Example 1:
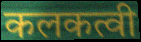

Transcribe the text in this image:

कलकत्वी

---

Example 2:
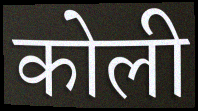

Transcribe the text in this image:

कोली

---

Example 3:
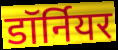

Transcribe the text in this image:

डॉर्नियर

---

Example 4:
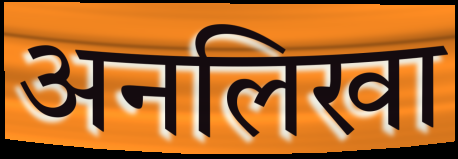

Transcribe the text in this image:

अनलिखा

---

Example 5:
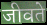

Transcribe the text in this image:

जीवते